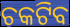
ଚକଟିବ